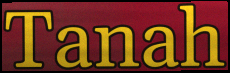
Tanah